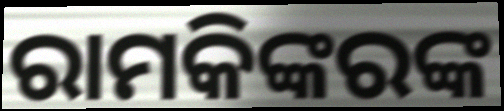
ରାମକିଙ୍କରଙ୍କ